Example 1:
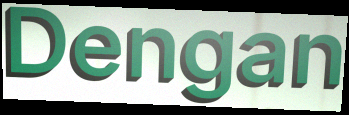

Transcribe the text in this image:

Dengan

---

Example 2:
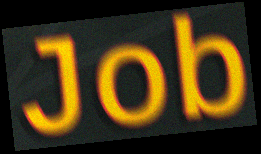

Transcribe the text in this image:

Job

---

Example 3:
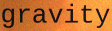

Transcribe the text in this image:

gravity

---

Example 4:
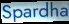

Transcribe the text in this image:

Spardha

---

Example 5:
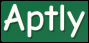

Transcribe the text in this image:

Aptly